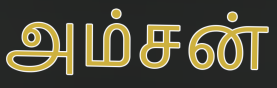
அம்சன்